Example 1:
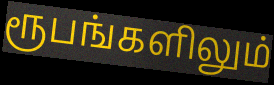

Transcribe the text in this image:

ரூபங்களிலும்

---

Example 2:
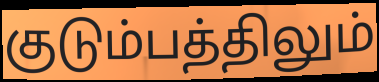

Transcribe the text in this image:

குடும்பத்திலும்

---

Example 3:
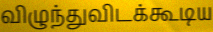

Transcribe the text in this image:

விழுந்துவிடக்கூடிய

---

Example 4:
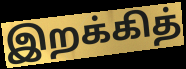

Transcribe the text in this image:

இறக்கித்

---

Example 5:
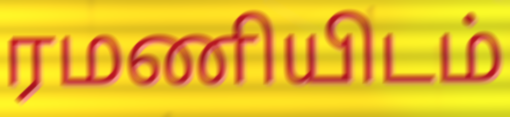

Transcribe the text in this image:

ரமணியிடம்